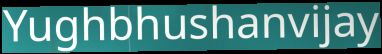
Yughbhushanvijay